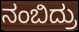
ನಂಬಿದ್ರು